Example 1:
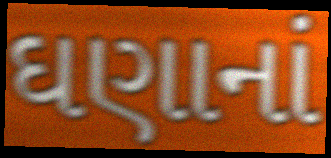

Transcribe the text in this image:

ઘણાનાં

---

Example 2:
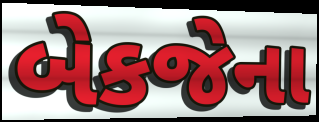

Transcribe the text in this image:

બેકજેના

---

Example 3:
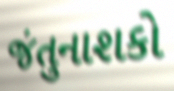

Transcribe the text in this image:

જંતુનાશકો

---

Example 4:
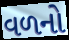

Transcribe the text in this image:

વળનો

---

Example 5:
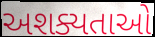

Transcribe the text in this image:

અશક્યતાઓ